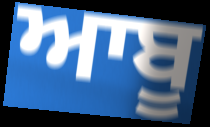
ਆਬੂ